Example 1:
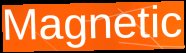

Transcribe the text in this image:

Magnetic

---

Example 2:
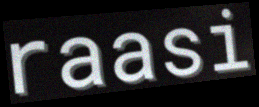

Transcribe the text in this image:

raasi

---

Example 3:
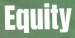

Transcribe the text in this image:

Equity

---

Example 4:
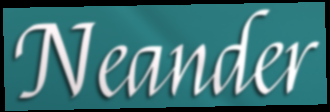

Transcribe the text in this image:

Neander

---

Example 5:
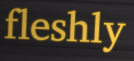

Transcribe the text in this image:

fleshly